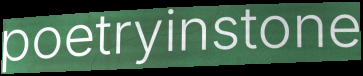
poetryinstone